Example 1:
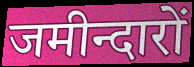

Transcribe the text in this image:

जमीन्दारों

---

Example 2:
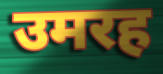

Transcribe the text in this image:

उमरह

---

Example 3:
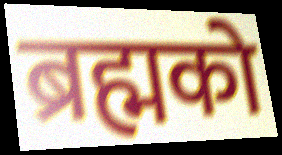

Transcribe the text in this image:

ब्रह्मको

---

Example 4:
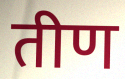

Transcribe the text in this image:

तीण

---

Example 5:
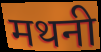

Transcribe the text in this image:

मथनी